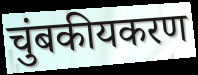
चुंबकीयकरण